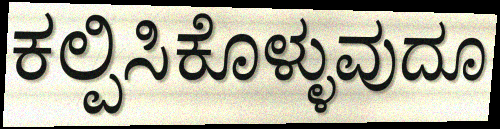
ಕಲ್ಪಿಸಿಕೊಳ್ಳುವುದೂ